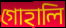
গোহালি